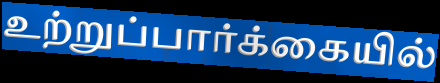
உற்றுப்பார்க்கையில்